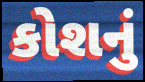
કોશનું